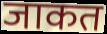
जाकत